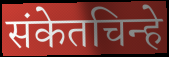
संकेतचिन्हे